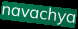
navachya